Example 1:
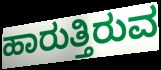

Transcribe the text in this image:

ಹಾರುತ್ತಿರುವ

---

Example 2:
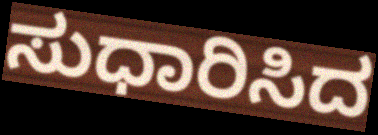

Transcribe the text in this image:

ಸುಧಾರಿಸಿದ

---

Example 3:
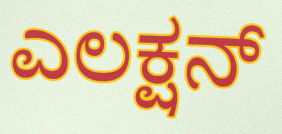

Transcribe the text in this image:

ಎಲಕ್ಷನ್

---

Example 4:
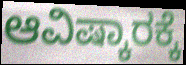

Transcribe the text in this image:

ಆವಿಷ್ಕಾರಕ್ಕೆ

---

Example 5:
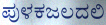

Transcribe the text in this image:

ಪುಳಕಜಲದಲಿ